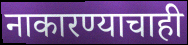
नाकारण्याचाही